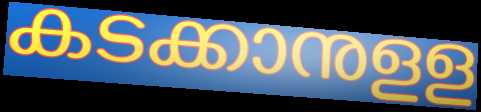
കടക്കാനുളള